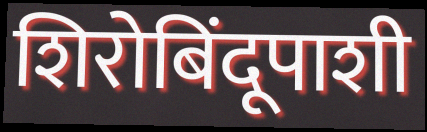
शिरोबिंदूपाशी